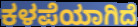
ಕಳಪೆಯಾಗಿದೆ